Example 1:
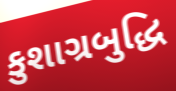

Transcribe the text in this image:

કુશાગ્રબુદ્ધિ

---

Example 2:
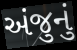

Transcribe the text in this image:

અંજુનું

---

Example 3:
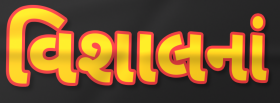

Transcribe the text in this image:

વિશાલનાં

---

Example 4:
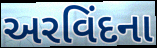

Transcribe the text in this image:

અરવિંદના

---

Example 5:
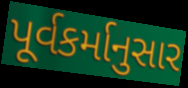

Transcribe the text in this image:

પૂર્વકર્માનુસાર